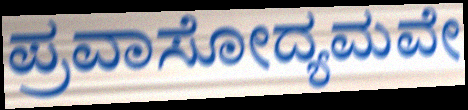
ಪ್ರವಾಸೋದ್ಯಮವೇ